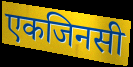
एकजिनसी